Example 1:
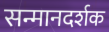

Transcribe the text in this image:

सन्मानदर्शक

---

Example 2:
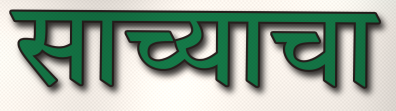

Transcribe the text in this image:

साच्याचा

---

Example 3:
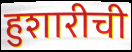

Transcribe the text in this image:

हुशारीची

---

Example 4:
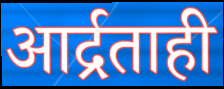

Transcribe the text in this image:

आर्द्रताही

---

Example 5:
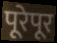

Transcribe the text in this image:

पूरेपूर